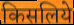
किसलिये